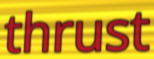
thrust